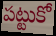
పట్టుకో